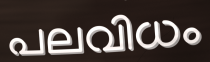
പലവിധം